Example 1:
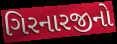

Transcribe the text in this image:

ગિરનારજીનો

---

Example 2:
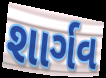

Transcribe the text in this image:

શાર્ગવ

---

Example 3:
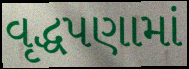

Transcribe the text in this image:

વૃદ્ધપણામાં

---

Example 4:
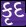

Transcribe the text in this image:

કૃદ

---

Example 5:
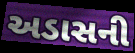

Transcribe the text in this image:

અડાસની